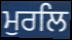
ਮੁਰਲਿ